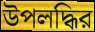
উপলদ্ধির